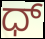
ಧ್